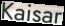
Kaisar